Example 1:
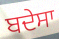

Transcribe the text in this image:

ਬਦੇਸਾ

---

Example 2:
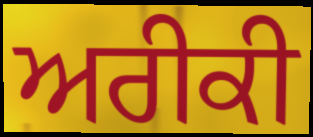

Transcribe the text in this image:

ਅਰੀਕੀ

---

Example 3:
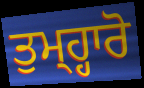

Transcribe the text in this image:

ਤੁਮ੍ਹ੍ਹਾਰੋ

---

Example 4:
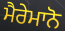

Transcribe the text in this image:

ਮੈਰੇਮਾਨੋ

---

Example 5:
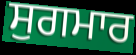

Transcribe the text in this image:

ਸੁਗਮਾਰ